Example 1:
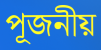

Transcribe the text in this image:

পূজনীয়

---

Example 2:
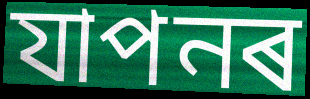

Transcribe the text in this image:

যাপনৰ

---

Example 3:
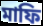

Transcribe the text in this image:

মাফি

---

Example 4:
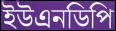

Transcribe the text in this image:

ইউএনডিপি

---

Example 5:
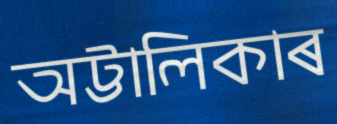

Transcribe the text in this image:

অট্টালিকাৰ